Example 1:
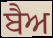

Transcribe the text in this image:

ਬੈਅ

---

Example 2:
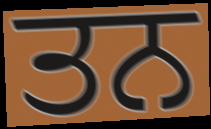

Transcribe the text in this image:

ਤਨ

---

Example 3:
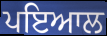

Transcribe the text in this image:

ਪਇਆਲ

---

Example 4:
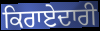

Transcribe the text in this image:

ਕਿਰਾਏਦਾਰੀ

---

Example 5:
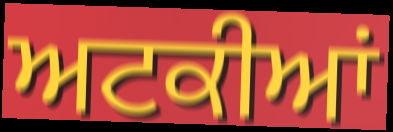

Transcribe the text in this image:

ਅਟਕੀਆਂ